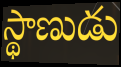
స్థాణుడు